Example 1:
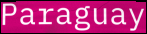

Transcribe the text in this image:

Paraguay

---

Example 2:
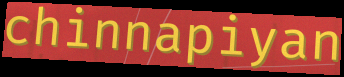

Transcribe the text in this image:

chinnapiyan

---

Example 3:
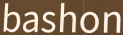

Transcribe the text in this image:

bashon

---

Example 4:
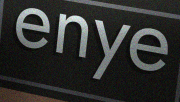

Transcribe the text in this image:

enye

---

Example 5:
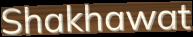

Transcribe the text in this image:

Shakhawat